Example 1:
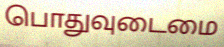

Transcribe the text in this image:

பொதுவுடைமை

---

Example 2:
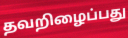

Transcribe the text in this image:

தவறிழைப்பது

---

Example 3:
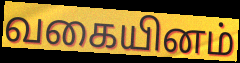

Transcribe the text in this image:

வகையினம்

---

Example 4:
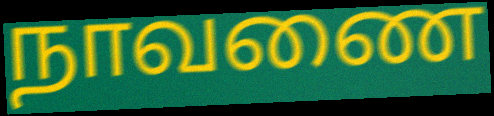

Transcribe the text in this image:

நாவணை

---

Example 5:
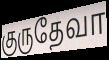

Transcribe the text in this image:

குருதேவா